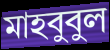
মাহবুবুল